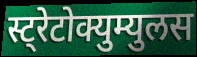
स्ट्रेटोक्युम्युलस